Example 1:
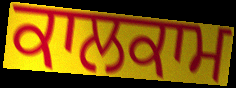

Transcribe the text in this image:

ਕਾਲਕਾਮ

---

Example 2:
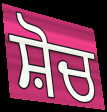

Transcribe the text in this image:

ਸ਼ੋਚ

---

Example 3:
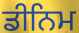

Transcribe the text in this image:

ਡੀਨਿਮ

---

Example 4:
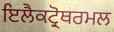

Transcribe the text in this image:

ਇਲੈਕਟ੍ਰੋਥਰਮਲ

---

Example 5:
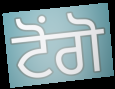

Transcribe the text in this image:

ਟੋਂਗੋ